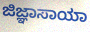
ಜಿಜ್ಞಾಸಾಯಾ